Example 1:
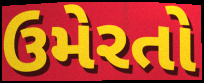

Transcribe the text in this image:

ઉમેરતો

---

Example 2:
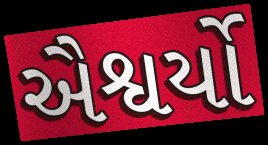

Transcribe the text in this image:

ઐશ્વર્યો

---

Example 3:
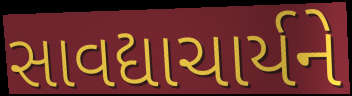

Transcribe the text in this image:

સાવદ્યાચાર્યને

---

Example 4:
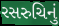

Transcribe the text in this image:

રસરુચિનું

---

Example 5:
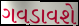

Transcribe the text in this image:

ગવડાવશે